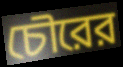
চৌরের